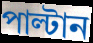
পাল্টান